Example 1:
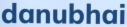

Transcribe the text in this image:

danubhai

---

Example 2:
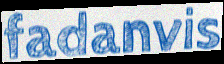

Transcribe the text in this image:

fadanvis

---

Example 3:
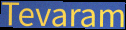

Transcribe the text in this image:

Tevaram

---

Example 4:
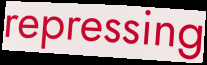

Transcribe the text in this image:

repressing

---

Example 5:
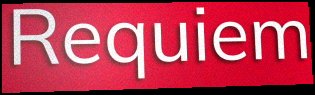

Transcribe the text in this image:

Requiem